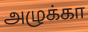
அழுக்கா